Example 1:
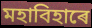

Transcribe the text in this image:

মহাবিহাৰে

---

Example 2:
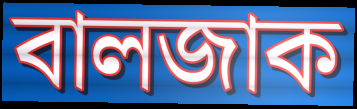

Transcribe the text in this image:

বালজাক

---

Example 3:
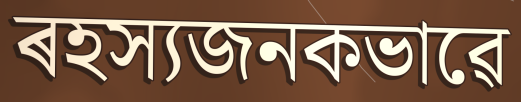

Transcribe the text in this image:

ৰহস্যজনকভাৱে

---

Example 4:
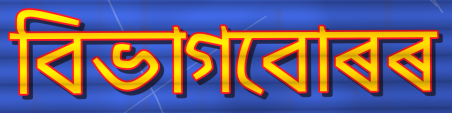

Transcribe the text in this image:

বিভাগবোৰৰ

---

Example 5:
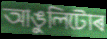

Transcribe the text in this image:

আঙুলিটোৰ